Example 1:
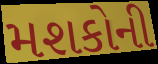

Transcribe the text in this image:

મશકોની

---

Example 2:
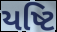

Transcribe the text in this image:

યષ્ટિ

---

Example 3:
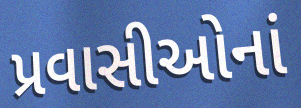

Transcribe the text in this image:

પ્રવાસીઓનાં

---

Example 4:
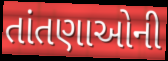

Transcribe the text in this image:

તાંતણાઓની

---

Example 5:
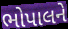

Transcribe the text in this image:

ભોપાલને